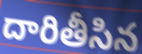
దారితీసిన